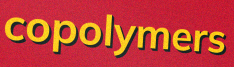
copolymers